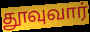
தூவுவார்